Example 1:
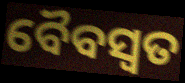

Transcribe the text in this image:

ବୈବସ୍ଵତ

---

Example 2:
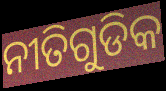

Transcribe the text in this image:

ନୀତିଗୁଡିକ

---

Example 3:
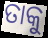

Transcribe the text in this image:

ତାକୁ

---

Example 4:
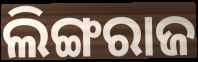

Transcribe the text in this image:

ଲିଙ୍ଗରାଜ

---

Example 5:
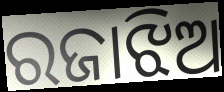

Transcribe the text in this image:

ରଜାଝିଅ